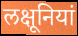
लक्षूनियां